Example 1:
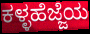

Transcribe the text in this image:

ಕಳ್ಳಹೆಜ್ಜೆಯ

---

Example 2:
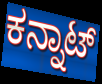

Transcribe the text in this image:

ಕನ್ನಾಟ್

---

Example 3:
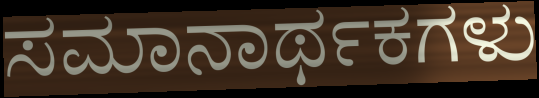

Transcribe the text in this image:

ಸಮಾನಾರ್ಥಕಗಳು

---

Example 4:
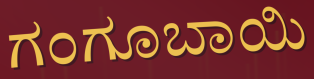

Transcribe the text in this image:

ಗಂಗೂಬಾಯಿ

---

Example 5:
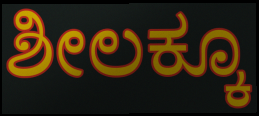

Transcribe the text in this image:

ಶೀಲಕ್ಕೂ